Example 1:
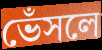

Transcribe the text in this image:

ভেঁসলে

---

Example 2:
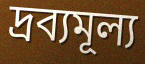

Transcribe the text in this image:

দ্রব্যমূল্য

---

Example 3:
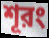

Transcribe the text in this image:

শূরং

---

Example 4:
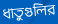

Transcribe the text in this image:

ধাতুগুলির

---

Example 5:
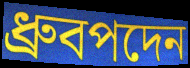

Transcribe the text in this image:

ধ্রুবপদেন